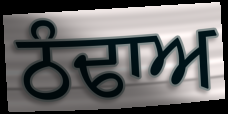
ਠੰਢਾਅ